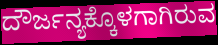
ದೌರ್ಜನ್ಯಕ್ಕೊಳಗಾಗಿರುವ